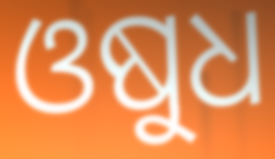
ଓଷୁଧ